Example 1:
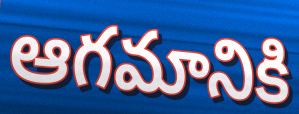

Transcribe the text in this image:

ఆగమానికి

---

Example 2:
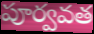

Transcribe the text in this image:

పూర్వవత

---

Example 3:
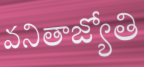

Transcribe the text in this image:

వనితాజ్యోతి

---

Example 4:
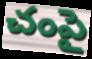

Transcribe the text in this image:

చంపై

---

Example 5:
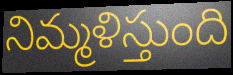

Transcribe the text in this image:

నిమ్మళిస్తుంది